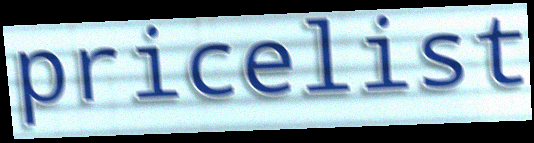
pricelist